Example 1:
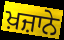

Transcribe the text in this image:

ਖ਼ਜ਼ਾਨੇ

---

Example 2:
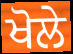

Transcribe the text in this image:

ਖੋਲੇ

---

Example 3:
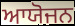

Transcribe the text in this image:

ਆਯੋਜਨ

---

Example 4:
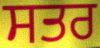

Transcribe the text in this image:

ਸਤਰ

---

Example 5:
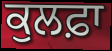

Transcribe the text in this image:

ਕੁਲਫ਼ਾ